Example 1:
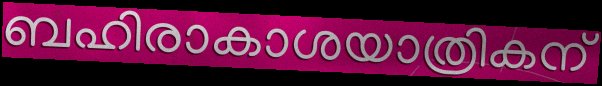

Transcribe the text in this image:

ബഹിരാകാശയാത്രികന്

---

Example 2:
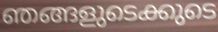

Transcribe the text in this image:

ഞങ്ങളുടെക്കുടെ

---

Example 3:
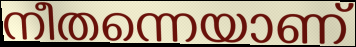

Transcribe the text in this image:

നീതന്നെയാണ്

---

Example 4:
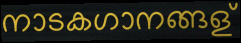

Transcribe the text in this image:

നാടകഗാനങ്ങള്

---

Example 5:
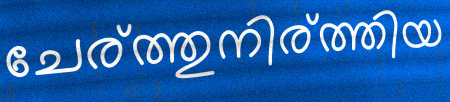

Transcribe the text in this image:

ചേര്ത്തുനിര്ത്തിയ